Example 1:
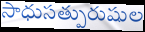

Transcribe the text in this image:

సాధుసత్పురుషుల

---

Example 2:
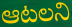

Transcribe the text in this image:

ఆటలని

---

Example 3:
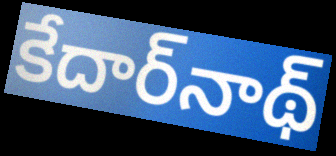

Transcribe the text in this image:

కేదార్‌నాథ్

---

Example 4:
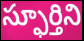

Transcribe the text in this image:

స్ఫూర్తిని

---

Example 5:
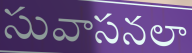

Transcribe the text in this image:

సువాసనలా